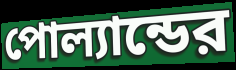
পোল্যান্ডের